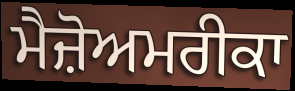
ਮੈਜ਼ੋਅਮਰੀਕਾ